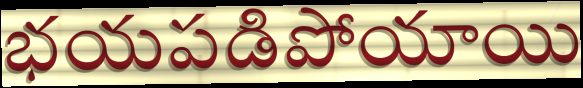
భయపడిపోయాయి